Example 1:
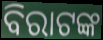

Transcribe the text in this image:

ବିରାଟଙ୍କ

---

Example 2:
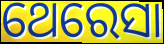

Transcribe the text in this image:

ଥେରେସା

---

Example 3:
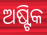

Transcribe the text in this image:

ଅଷ୍ଟିକ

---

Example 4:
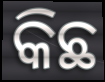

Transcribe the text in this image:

କିଛ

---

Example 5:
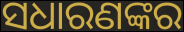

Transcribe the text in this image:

ସଧାରଣଙ୍କର